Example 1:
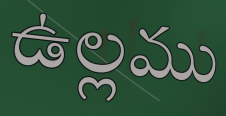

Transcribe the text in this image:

ఉల్లము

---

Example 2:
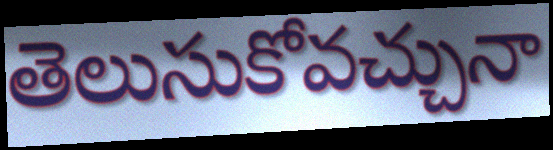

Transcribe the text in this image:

తెలుసుకోవచ్చునా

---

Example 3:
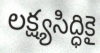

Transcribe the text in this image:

లక్ష్యసిద్ధికై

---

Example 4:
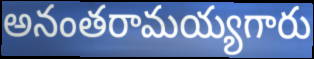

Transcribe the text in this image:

అనంతరామయ్యగారు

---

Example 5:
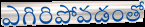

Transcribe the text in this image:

ఎగిరిపోవడంతో